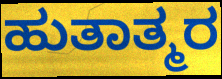
ಹುತಾತ್ಮರ